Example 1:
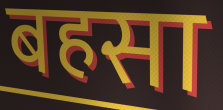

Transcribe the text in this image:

बहसा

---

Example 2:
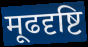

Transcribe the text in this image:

मूढदृष्टि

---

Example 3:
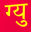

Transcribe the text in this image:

ग्यु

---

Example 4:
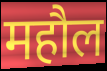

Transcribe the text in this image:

महौल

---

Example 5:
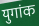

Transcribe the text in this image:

युगांक